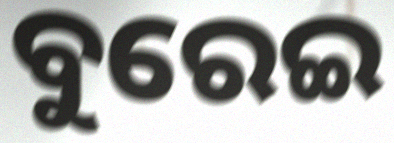
ବୁରେଇ